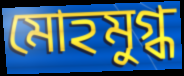
মোহমুগ্ধ